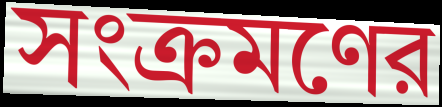
সংক্রমণের